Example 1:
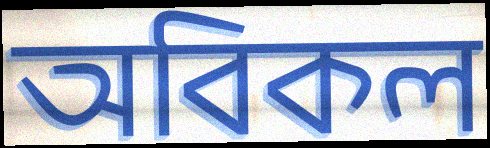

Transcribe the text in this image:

অবিকল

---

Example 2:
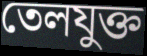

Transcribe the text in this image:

তেলযুক্ত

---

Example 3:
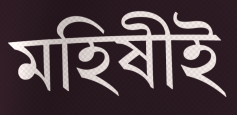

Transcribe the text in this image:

মহিষীই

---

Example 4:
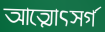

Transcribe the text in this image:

আত্মোৎসর্গ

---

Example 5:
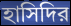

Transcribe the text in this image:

হাসিদির